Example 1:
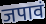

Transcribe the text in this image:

जपावं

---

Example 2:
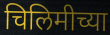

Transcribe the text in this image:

चिलिमीच्या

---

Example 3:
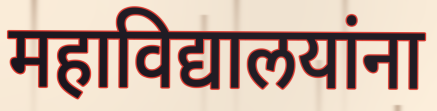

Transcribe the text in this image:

महाविद्यालयांना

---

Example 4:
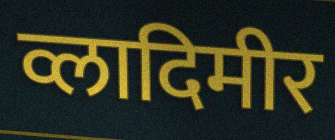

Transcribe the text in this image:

व्लादिमीर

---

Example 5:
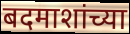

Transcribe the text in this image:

बदमाशांच्या